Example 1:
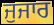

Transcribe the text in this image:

ਜੁਜਾਰ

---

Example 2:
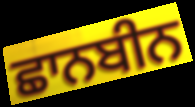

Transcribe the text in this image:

ਛਾਨਬੀਨ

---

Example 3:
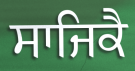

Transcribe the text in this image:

ਸਾਜਿਕੈ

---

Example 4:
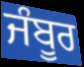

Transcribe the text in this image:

ਜੰਬੂਰ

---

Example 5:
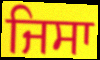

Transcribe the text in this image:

ਜਿਸਾ